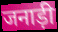
जनाड़ी